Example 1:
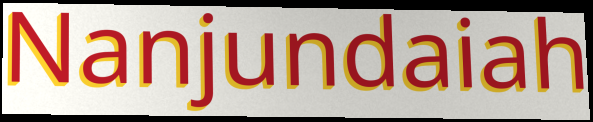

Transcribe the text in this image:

Nanjundaiah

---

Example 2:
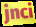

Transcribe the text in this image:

jnci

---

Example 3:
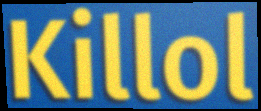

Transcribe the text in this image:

Killol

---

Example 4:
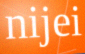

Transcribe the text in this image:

nijei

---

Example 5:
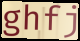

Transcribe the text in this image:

ghfj